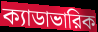
ক্যাডাভারিক